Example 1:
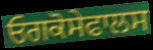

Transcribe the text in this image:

ਓਗਕੋਸੇਫਾਲਸ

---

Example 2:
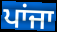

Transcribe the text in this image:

ਪਾਂਜਾ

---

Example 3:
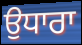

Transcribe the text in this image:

ਉਧਾਰਾ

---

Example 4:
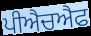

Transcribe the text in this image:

ਪੀਐਚਐਫ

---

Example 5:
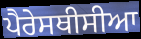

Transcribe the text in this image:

ਪੈਰੇਸਥੀਸੀਆ